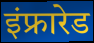
इंफ्रारेड